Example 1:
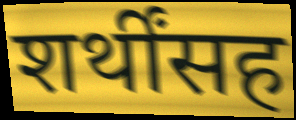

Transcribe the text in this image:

शर्थींसह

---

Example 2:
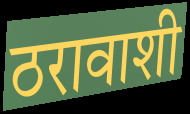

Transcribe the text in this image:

ठरावाशी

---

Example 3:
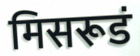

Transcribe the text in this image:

मिसरूडं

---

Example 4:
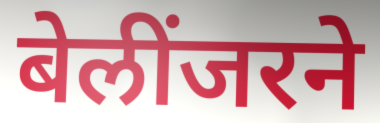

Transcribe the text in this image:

बेलींजरने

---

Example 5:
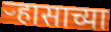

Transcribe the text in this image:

ऱ्हासाच्या